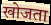
खोजता